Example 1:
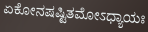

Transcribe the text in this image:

ಏಕೋನಷಷ್ಟಿತಮೋಽಧ್ಯಾಯಃ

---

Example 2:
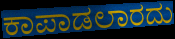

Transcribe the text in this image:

ಕಾಪಾಡಲಾರದು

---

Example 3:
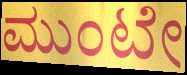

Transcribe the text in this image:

ಮುಂಟೇ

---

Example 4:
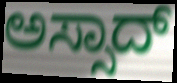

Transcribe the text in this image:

ಅಸ್ಸಾದ್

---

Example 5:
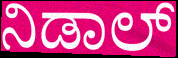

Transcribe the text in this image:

ನಿಡಾಲ್